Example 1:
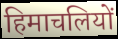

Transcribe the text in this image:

हिमाचलियों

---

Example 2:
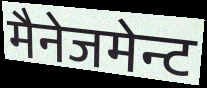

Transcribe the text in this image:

मैनेजमेन्ट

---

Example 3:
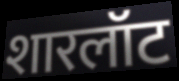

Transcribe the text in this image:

शारलॉट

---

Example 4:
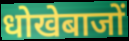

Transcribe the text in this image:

धोखेबाजों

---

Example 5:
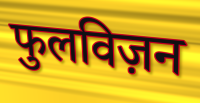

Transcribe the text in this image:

फुलविज़न